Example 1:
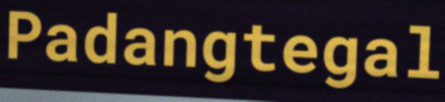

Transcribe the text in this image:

Padangtegal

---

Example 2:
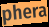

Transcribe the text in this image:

phera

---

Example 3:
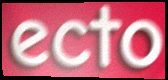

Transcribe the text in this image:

ecto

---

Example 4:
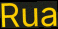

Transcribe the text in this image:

Rua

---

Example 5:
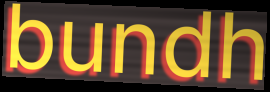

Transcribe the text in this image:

bundh